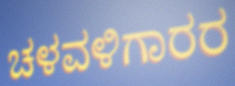
ಚಳವಳಿಗಾರರ